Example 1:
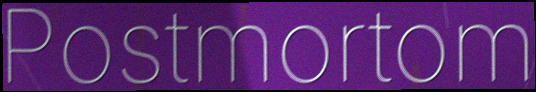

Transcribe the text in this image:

Postmortom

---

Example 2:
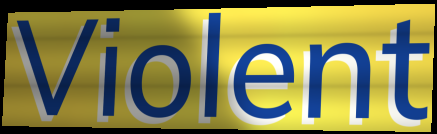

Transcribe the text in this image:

Violent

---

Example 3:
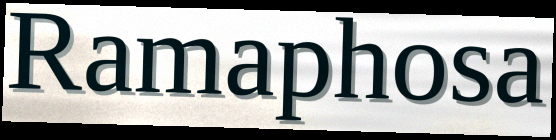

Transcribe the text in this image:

Ramaphosa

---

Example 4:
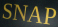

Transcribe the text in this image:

SNAP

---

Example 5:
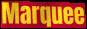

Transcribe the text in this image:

Marquee